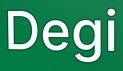
Degi